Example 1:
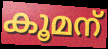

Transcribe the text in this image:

കൂമന്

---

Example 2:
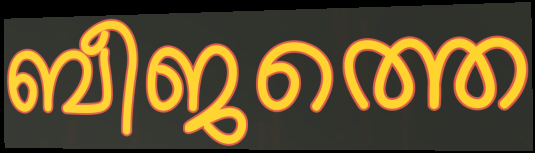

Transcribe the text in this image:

ബീജത്തെ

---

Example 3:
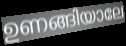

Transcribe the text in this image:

ഉണങ്ങിയാലേ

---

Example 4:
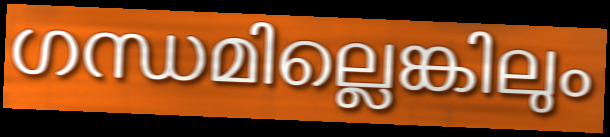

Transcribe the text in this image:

ഗന്ധമില്ലെങ്കിലും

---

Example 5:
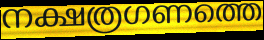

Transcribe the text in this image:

നക്ഷത്രഗണത്തെ